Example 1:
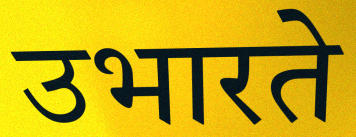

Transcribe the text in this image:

उभारते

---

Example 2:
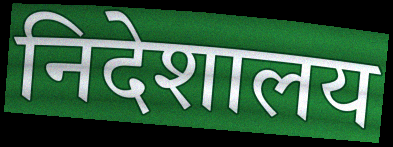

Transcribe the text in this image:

निदेशालय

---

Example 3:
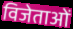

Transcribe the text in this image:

विजेताओं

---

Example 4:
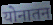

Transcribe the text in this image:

योनातन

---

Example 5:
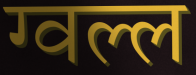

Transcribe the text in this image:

ग्वल्ल